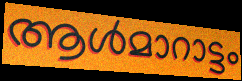
ആൾമാറാട്ടം